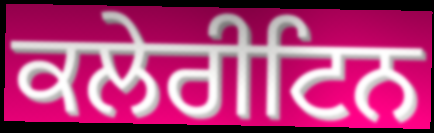
ਕਲੇਰੀਟਿਨ